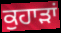
ਕੁਹਾੜਾਂ